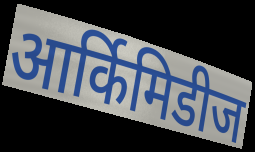
आर्किमिडीज